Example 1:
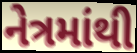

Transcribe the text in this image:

નેત્રમાંથી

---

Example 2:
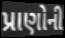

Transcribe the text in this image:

પ્રાણોની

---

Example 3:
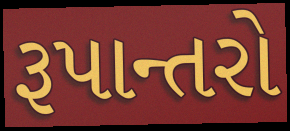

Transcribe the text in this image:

રૂપાન્તરો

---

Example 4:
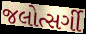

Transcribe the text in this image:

જલોત્સર્ગી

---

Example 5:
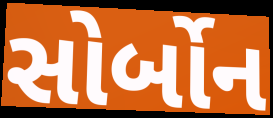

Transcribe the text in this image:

સોર્બોન